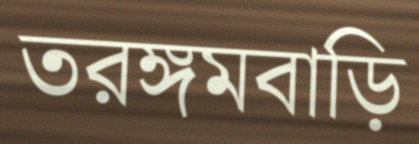
তরঙ্গমবাড়ি